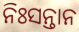
ନିଃସନ୍ତାନ